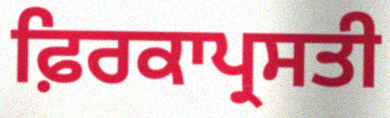
ਫ਼ਿਰਕਾਪ੍ਰਸਤੀ